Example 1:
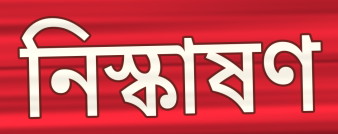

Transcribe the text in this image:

নিস্কাষণ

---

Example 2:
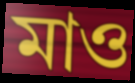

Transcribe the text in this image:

মাও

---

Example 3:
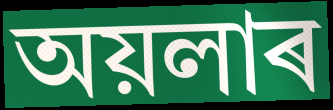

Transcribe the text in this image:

অয়লাৰ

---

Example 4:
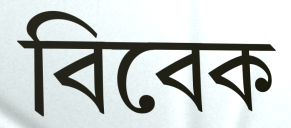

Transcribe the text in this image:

বিবেক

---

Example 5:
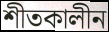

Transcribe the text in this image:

শীতকালীন